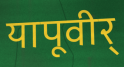
यापूवीर्